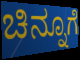
ಚಿನ್ನೂಗೆ